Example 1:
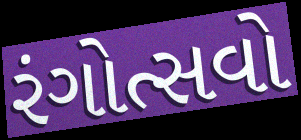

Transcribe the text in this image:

રંગોત્સવો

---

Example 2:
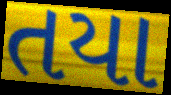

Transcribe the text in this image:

તયા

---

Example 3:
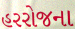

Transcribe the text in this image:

હરરોજના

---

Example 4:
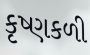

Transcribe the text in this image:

કૃષ્ણકળી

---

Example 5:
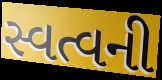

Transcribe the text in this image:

સ્વત્વની